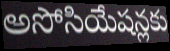
అసోసియేషన్లకు